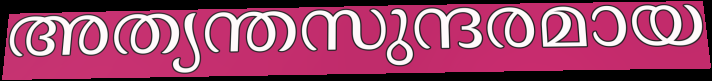
അത്യന്തസുന്ദരമായ